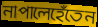
নাপালেহেঁতেন